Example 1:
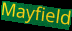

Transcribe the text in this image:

Mayfield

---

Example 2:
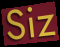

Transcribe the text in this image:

Siz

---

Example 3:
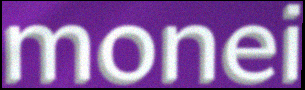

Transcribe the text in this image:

monei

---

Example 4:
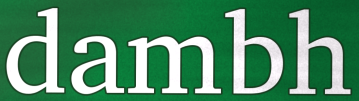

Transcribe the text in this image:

dambh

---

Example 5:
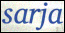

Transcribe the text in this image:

sarja